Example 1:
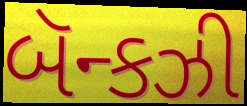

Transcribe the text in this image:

બૅન્કઝી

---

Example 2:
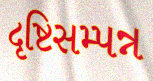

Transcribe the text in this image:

દૃષ્ટિસમ્પન્ન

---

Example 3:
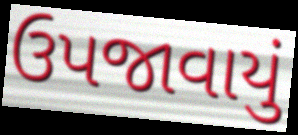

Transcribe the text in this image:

ઉપજાવાયું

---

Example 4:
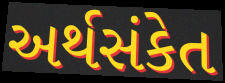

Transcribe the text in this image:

અર્થસંકેત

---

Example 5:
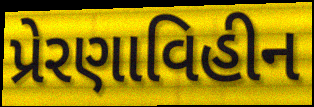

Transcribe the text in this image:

પ્રેરણાવિહીન